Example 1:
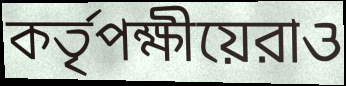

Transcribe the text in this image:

কর্তৃপক্ষীয়েরাও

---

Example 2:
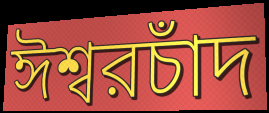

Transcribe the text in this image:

ঈশ্বরচাঁদ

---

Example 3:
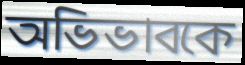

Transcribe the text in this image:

অভিভাবকে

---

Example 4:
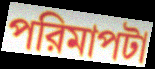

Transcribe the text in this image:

পরিমাপটা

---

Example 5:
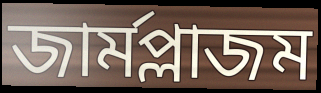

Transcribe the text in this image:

জার্মপ্লাজম